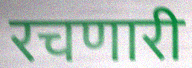
रचणारी